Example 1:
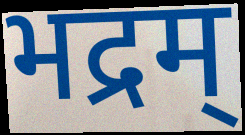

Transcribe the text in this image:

भद्रम्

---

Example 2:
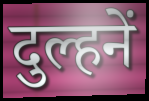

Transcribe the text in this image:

दुल्हनें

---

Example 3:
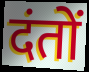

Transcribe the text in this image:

दंतों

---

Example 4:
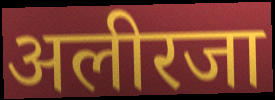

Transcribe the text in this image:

अलीरजा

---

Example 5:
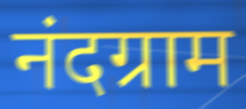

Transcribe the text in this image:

नंदग्राम